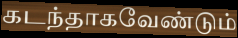
கடந்தாகவேண்டும்